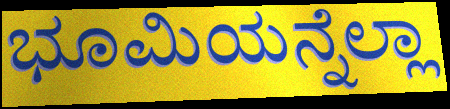
ಭೂಮಿಯನ್ನೆಲ್ಲಾ